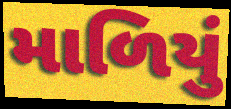
માળિયું